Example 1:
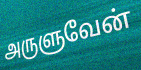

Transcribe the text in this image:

அருளுவேன்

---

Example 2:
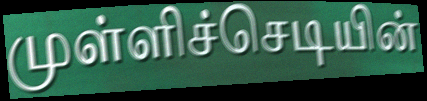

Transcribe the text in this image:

முள்ளிச்செடியின்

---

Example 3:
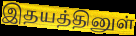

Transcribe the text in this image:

இதயத்தினுள்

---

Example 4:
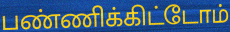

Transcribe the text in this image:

பண்ணிக்கிட்டோம்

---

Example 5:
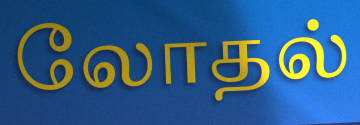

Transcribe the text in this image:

லோதல்